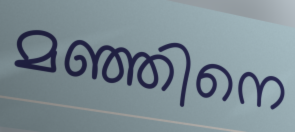
മഞ്ഞിനെ